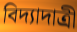
বিদ্যাদাত্রী